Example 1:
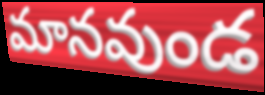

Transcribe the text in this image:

మానవుండ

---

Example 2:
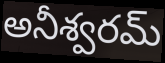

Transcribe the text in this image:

అనీశ్వరమ్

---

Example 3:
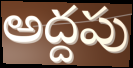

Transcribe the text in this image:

అద్దపు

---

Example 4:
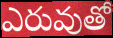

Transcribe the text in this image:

ఎరువుతో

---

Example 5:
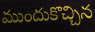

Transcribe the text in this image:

ముందుకొచ్చిన